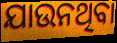
ଯାଉନଥିବା